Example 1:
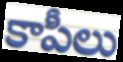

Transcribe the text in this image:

కాపీలు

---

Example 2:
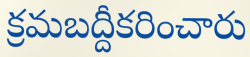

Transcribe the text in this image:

క్రమబద్దీకరించారు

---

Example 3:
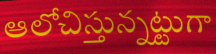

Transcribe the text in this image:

ఆలోచిస్తున్నట్టుగా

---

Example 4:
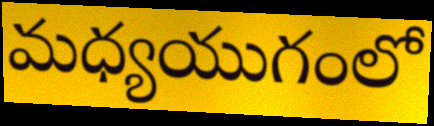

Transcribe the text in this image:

మధ్యయుగంలో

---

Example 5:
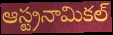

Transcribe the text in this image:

ఆస్ట్రనామికల్